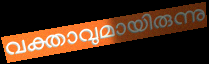
വക്താവുമായിരുന്നു